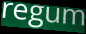
regum